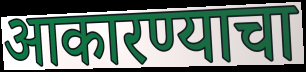
आकारण्याचा